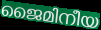
ജൈമിനീയ